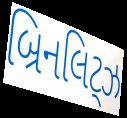
બ્રિનલિટ્ઝ